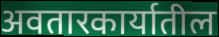
अवतारकार्यातील